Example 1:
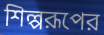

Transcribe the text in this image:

শিল্পরূপের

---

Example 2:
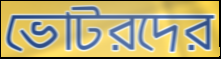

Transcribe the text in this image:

ভোটরদের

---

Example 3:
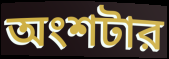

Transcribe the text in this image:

অংশটার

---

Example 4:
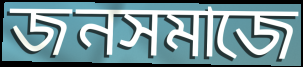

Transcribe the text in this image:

জনসমাজে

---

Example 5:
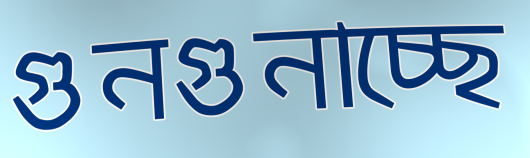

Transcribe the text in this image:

গুনগুনাচ্ছে